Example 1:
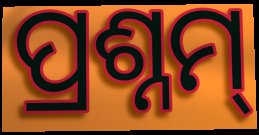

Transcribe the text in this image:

ପ୍ରଶ୍ନମ୍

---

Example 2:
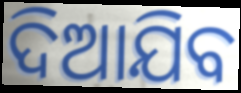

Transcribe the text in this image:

ଦିଆଯିବ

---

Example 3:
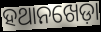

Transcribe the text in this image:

ହଥାନଖେଡ଼ା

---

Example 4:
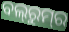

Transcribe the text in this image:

ବଲ୍‍ରୁମ୍‌ର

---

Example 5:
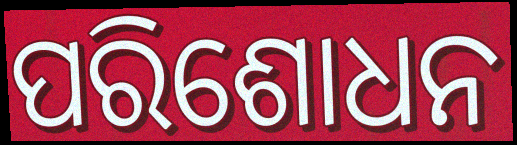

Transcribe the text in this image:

ପରିଶୋଧନ